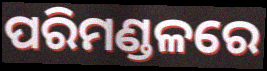
ପରିମଣ୍ଡଳରେ